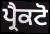
ਪ੍ਰੈਕਟੋ